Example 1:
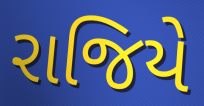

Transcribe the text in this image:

રાજિયે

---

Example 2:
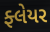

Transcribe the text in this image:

ફ્લેયર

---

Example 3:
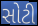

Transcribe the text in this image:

સોટી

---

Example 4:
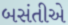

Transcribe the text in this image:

બસંતીએ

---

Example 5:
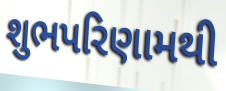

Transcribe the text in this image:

શુભપરિણામથી